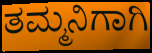
ತಮ್ಮನಿಗಾಗಿ